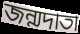
জন্মদাতা